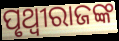
ପୃଥ୍ଵୀରାଜଙ୍କ